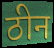
ठीन